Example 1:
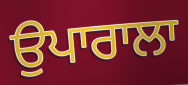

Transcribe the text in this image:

ਉਪਾਰਾਲਾ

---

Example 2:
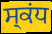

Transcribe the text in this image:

ਸ੍ਕਂਧ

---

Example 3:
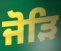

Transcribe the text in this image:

ਜੋੜਿ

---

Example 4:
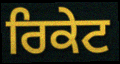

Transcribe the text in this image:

ਰਿਕੇਟ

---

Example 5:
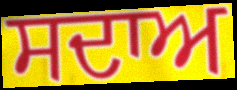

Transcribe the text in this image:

ਸਦਾਅ